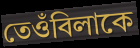
তেওঁবিলাকে